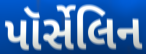
પૉર્સેલિન